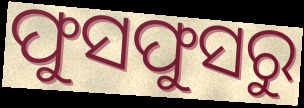
ଫୁସଫୁସରୁ